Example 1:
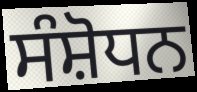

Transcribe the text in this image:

ਸੰਸ਼ੋਧਨ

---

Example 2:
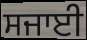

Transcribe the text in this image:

ਸਜਾਈ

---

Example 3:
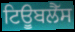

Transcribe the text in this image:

ਟਿਊਬਲੈੱਸ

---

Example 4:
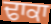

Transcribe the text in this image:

ਢਾਕਾ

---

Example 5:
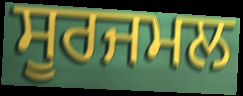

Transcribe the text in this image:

ਸੂਰਜਮਲ